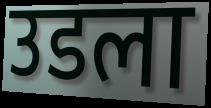
उडला